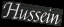
Hussein